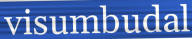
visumbudal